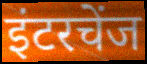
इंटरचेंज